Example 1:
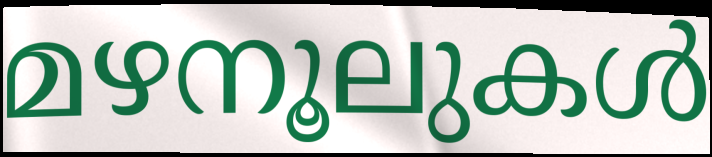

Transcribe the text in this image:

മഴനൂലുകൾ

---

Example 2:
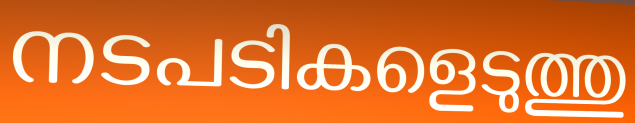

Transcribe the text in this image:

നടപടികളെടുത്തു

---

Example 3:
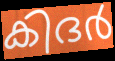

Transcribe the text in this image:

കിദർ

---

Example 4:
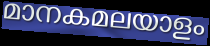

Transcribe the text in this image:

മാനകമലയാളം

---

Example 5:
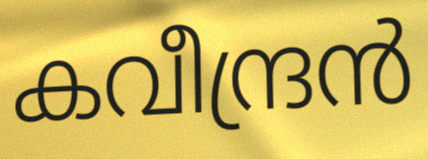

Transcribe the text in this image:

കവീന്ദ്രൻ